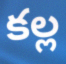
కల్ల